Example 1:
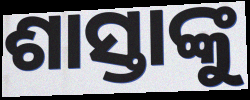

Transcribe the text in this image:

ଶାସ୍ତାଙ୍କୁ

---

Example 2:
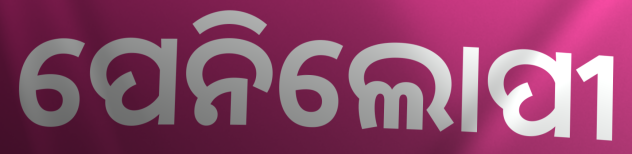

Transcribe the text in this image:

ପେନିଲୋପୀ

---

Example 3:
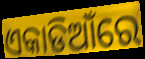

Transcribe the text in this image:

ଏକାଡିଆଁରେ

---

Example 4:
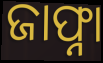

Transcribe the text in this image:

ଜାଫ୍ନା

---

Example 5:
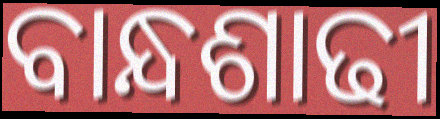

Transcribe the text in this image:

ବାନ୍ଧଶାଢୀ